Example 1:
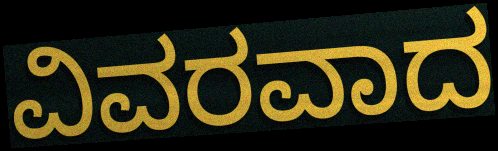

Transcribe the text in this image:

ವಿವರವಾದ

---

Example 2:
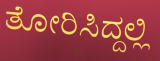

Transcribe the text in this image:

ತೋರಿಸಿದ್ದಲ್ಲಿ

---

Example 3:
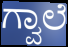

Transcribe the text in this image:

ಗ್ವಾಲೆ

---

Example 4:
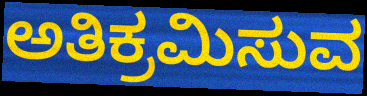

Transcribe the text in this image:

ಅತಿಕ್ರಮಿಸುವ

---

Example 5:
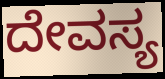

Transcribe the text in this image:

ದೇವಸ್ಯ